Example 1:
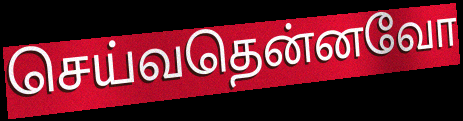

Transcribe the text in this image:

செய்வதென்னவோ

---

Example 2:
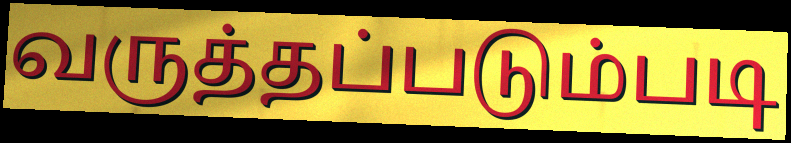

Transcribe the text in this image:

வருத்தப்படும்படி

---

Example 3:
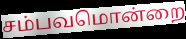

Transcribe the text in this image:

சம்பவமொன்றை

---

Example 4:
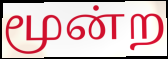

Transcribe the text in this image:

மூன்ற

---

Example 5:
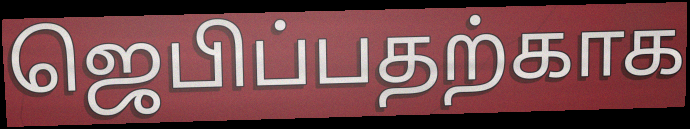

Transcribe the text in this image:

ஜெபிப்பதற்காக